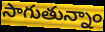
సాగుతున్నాం